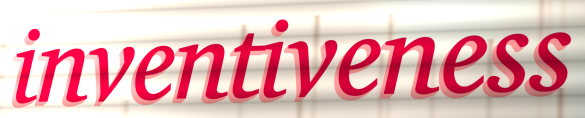
inventiveness